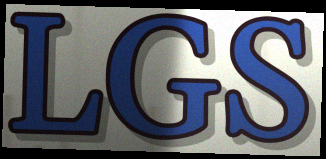
LGS